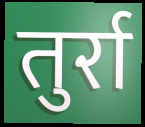
तुर्रा